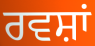
ਰਵਸ਼ਾਂ